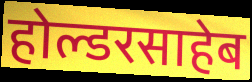
होल्डरसाहेब